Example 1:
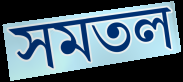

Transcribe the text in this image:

সমতল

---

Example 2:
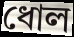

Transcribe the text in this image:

ধোল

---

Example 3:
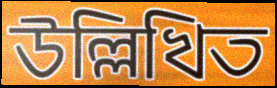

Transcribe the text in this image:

উল্লিখিত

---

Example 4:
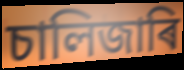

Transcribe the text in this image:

চালিজাৰি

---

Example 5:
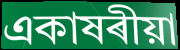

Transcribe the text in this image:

একাষৰীয়া